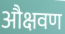
औक्षवण